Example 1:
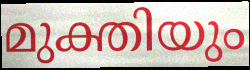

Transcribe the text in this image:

മുക്തിയും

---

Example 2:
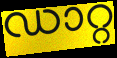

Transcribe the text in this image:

ഡാറ്റ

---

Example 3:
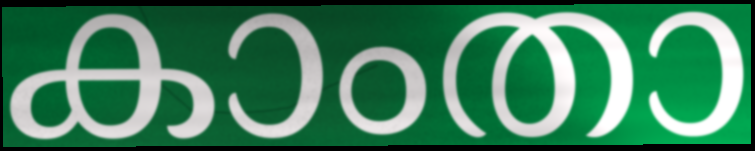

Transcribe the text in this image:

കാംതാ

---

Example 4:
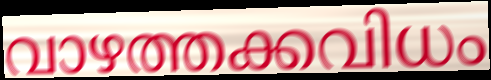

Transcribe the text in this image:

വാഴത്തക്കവിധം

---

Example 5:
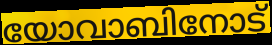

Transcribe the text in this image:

യോവാബിനോട്